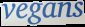
vegans